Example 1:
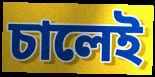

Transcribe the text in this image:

চালেই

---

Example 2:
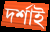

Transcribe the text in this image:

দৰ্শাই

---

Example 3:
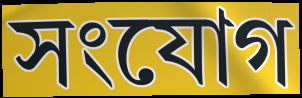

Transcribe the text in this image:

সংযোগ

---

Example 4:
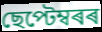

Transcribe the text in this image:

ছেপ্টেম্বৰৰ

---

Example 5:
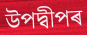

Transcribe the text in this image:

উপদ্বীপৰ